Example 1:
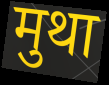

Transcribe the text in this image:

मुथा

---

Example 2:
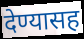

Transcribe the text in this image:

देण्यासह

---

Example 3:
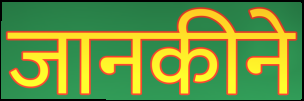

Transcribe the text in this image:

जानकीने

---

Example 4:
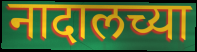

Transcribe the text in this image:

नादालच्या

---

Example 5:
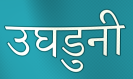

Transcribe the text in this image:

उघडुनी